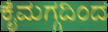
ಕೈಮಗ್ಗದಿಂದ